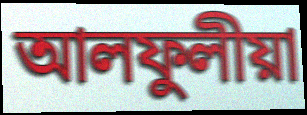
আলফুলীয়া